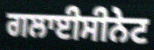
ਗਲਾਈਸੀਨੇਟ